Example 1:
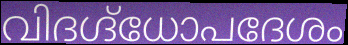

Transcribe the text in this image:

വിദഗ്ദ്ധോപദേശം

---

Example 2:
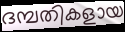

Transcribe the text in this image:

ദമ്പതികളായ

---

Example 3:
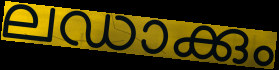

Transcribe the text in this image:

ലഡാക്കും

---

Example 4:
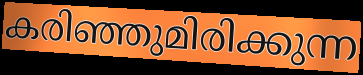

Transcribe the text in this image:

കരിഞ്ഞുമിരിക്കുന്ന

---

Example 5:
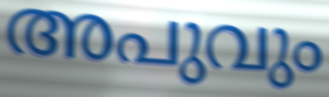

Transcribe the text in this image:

അപുവും